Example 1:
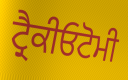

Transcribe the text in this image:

ਟ੍ਰੈਕੀਓਟੋਮੀ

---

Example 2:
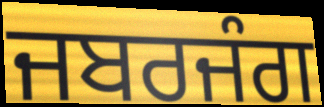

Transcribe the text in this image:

ਜਬਰਜੰਗ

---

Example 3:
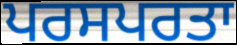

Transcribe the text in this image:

ਪਰਸਪਰਤਾ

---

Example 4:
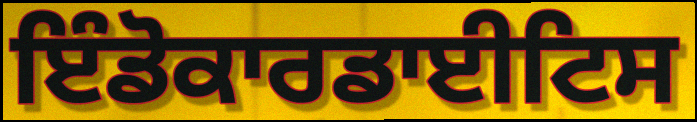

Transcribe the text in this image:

ਇੰਡੋਕਾਰਡਾਈਟਿਸ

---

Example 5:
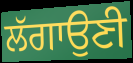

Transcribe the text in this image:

ਲੱਗਾਉਣੀ